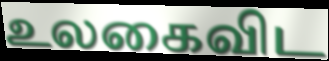
உலகைவிட